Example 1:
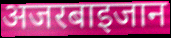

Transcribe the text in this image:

अजरबाइजान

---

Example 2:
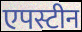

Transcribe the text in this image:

एपस्टीन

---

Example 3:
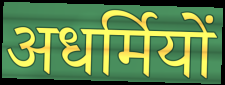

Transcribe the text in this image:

अधर्मियों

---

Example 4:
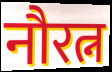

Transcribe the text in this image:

नौरत्न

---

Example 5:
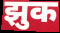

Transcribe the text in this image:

झुक